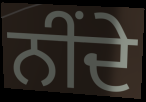
ਨੀਂਦੇ